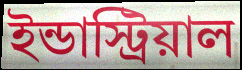
ইন্ডাস্ট্রিয়াল